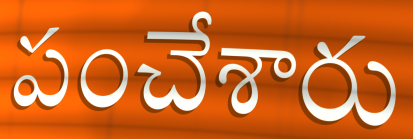
పంచేశారు